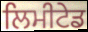
ਲਿਮੀਟੇਡ